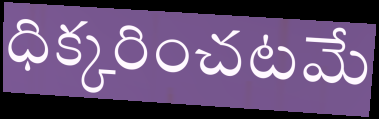
ధిక్కరించటమే